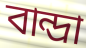
বান্দ্রা